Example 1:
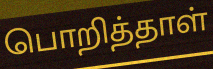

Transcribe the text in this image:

பொறித்தாள்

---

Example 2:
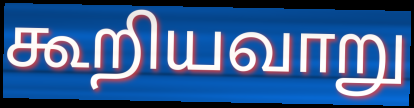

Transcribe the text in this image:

கூறியவாறு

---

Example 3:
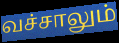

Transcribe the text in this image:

வச்சாலும்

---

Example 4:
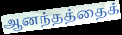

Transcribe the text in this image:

ஆனந்தத்தைக்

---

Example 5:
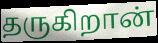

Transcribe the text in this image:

தருகிறான்